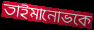
তাইমানোভকে